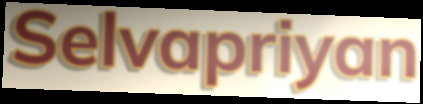
Selvapriyan